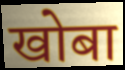
खोबा